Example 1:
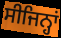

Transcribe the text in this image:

ਸੀਜਿਨ੍ਹਾਂ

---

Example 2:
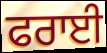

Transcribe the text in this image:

ਫਰਾਈ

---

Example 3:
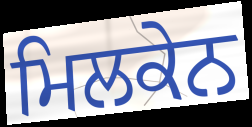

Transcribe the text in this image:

ਮਿਲਕੇਨ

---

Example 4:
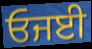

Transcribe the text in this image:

ਓਜਈ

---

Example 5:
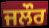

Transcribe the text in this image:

ਜਲੌਰ